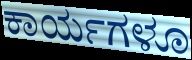
ಕಾರ್ಯಗಳೂ